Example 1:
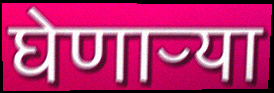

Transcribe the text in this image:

घेणाऱ्या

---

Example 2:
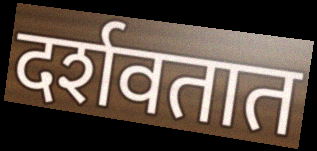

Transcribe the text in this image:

दर्शवतात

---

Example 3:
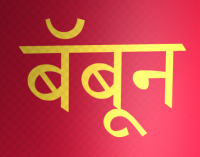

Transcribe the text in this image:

बॅबून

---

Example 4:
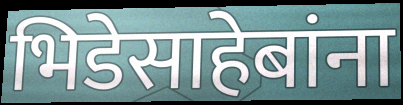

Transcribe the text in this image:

भिडेसाहेबांना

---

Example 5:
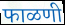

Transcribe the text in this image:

फाळणी